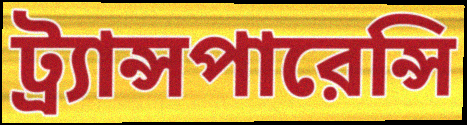
ট্র্যান্সপারেন্সি